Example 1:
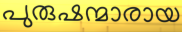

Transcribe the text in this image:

പുരുഷന്മാരായ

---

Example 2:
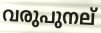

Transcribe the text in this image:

വരുപുനല്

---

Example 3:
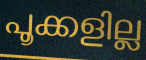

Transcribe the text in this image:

പൂക്കളില്ല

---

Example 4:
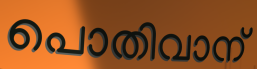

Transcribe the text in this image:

പൊതിവാന്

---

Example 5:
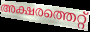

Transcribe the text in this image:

അക്ഷരത്തെറ്റ്